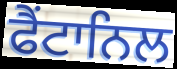
ਫੈਂਟਾਨਿਲ